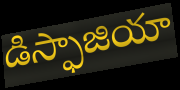
డిస్ఫాజియా